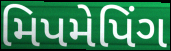
મિપમેપિંગ